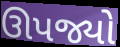
ઊપજ્યો